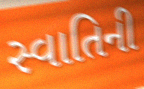
સ્વાતિની